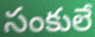
సంకులే